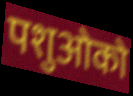
पशुओको